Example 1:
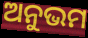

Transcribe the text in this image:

ଅନୁଭମ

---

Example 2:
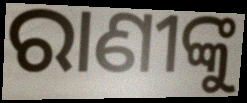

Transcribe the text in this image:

ରାଣୀଙ୍କୁ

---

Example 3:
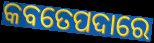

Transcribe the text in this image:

କବତେପଦାରେ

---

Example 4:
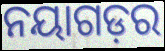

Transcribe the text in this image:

ନୟାଗଡ଼ର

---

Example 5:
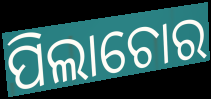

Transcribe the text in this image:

ପିଲାଚୋର